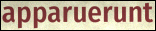
apparuerunt